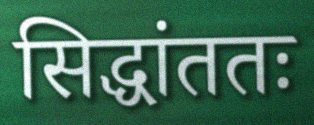
सिद्धांततः